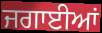
ਜਗਾਈਆਂ